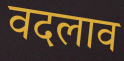
वदलाव